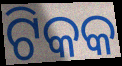
ଟିକକ